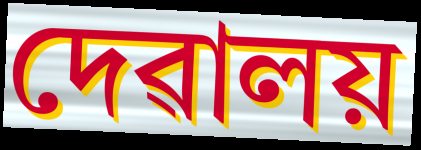
দেৱালয়